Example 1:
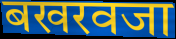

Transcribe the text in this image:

बखरवजा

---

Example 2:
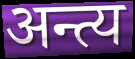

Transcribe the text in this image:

अन्त्य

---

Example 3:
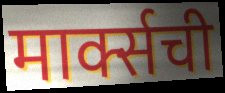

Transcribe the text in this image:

मार्क्सची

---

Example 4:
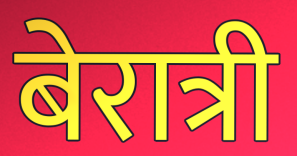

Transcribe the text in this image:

बेरात्री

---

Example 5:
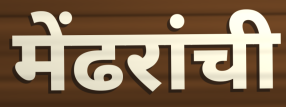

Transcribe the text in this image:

मेंढरांची